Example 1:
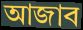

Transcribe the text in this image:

আজাব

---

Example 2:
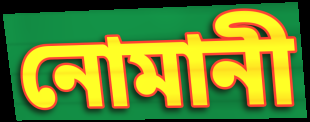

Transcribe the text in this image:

নোমানী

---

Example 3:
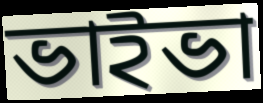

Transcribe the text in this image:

ভাইভা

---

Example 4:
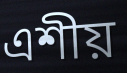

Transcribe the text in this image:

এশীয়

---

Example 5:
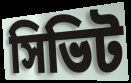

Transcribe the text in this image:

সিভিট